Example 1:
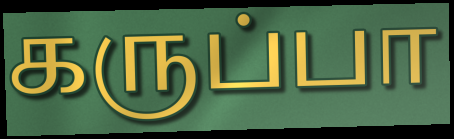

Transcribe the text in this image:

கருப்பா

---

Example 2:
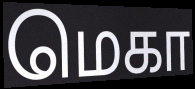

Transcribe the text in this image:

மெகா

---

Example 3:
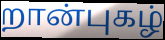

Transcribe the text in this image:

றான்புகழ்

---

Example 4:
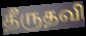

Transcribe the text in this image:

தீருதவி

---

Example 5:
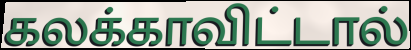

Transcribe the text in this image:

கலக்காவிட்டால்